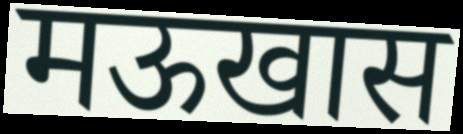
मऊखास